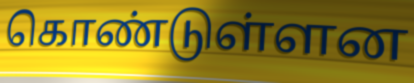
கொண்டுள்ளன